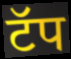
टॅप